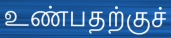
உண்பதற்குச்